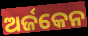
ଅର୍ଜକେନ